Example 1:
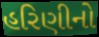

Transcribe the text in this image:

હરિણીનો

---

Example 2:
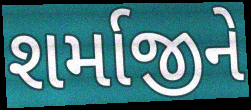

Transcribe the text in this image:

શર્માજીને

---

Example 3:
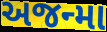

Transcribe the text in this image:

અજન્મા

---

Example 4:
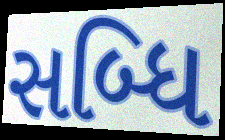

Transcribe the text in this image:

સબ્ધિ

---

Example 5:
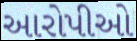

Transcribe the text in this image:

આરોપીઓ